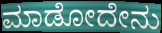
ಮಾಡೋದೇನು